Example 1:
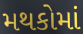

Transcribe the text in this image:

મથકોમાં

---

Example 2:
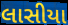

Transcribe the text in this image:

લાસીયા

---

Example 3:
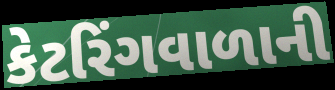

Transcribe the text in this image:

કેટરિંગવાળાની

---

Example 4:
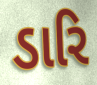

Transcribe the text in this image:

ડારિ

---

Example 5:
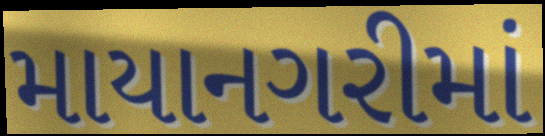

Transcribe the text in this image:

માયાનગરીમાં